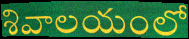
శివాలయంలో